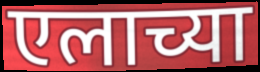
एलाच्या